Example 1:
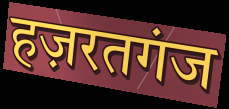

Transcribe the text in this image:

हज़रतगंज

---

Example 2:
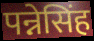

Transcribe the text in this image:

पन्नेसिंह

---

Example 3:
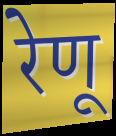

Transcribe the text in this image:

रेणू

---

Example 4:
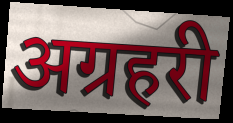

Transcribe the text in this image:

अग्रहरी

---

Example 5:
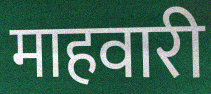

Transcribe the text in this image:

माहवारी